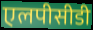
एलपीसीडी